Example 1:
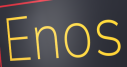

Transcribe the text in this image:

Enos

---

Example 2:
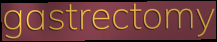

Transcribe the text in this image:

gastrectomy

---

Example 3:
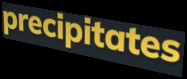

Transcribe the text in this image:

precipitates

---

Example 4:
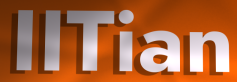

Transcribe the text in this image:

IITian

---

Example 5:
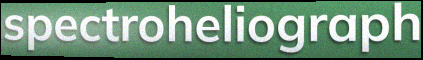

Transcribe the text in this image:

spectroheliograph